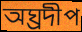
অঘ্ৰদীপ